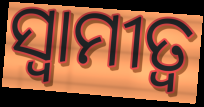
ସ୍ଵାମୀତ୍ବ